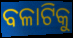
ବଳାଟିକୁ